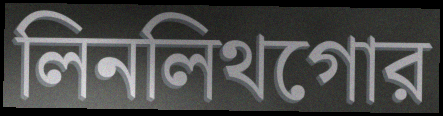
লিনলিথগোর